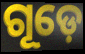
ଗୂଡ଼େ